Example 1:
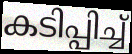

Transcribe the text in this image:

കടിപ്പിച്ച്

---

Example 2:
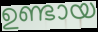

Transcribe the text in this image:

ഉണ്ടായ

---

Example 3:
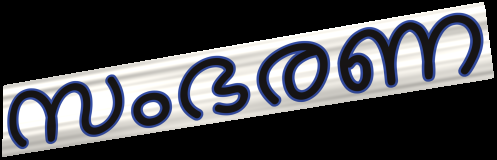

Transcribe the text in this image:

സംഭരണ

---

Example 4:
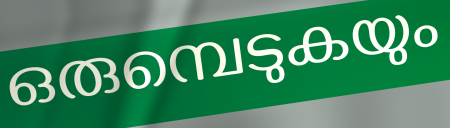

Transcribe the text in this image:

ഒരുമ്പെടുകയും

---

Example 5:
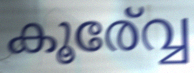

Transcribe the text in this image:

കൂര്വ്വേ